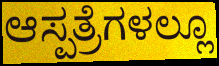
ಆಸ್ಪತ್ರೆಗಳಲ್ಲೂ